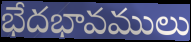
భేదభావములు